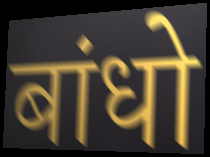
बांधो